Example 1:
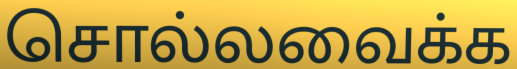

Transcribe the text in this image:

சொல்லவைக்க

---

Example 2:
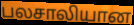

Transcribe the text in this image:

பலசாலியான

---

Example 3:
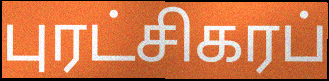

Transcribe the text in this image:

புரட்சிகரப்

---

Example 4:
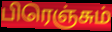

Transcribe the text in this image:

பிரெஞ்சும்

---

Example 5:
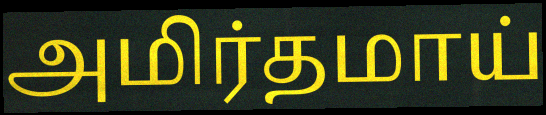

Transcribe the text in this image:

அமிர்தமாய்